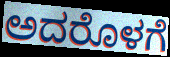
ಅದರೊಳಗೆ